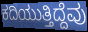
ಕದಿಯುತ್ತಿದ್ದೆವು